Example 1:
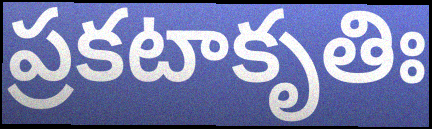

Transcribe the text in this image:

ప్రకటాకృతిః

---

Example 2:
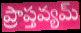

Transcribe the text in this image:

ప్రాప్తవ్యమ్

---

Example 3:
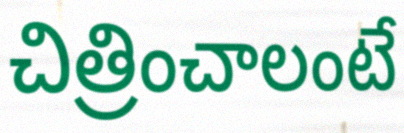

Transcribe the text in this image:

చిత్రించాలంటే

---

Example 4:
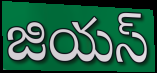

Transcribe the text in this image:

జియస్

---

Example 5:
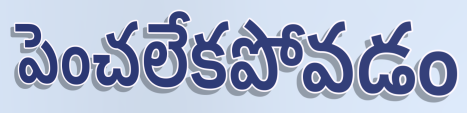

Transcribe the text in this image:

పెంచలేకపోవడం